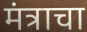
मंत्राचा